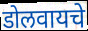
डोलवायचे